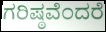
ಗರಿಷ್ಠವೆಂದರೆ